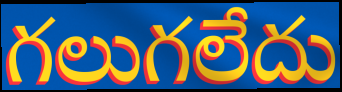
గలుగలేదు